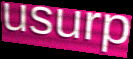
usurp